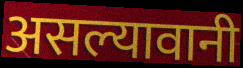
असल्यावानी